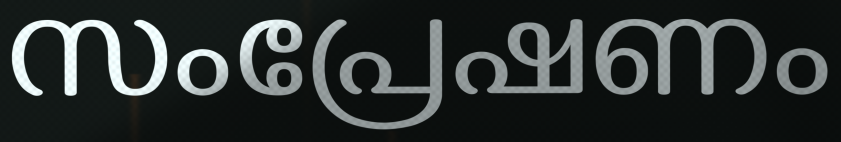
സംപ്രേഷണം